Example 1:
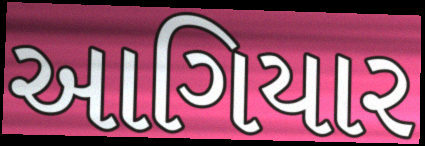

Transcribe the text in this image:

આગિયાર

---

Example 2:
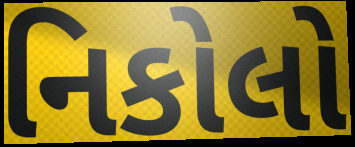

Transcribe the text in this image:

નિકોલો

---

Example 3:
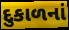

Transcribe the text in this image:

દુકાળનાં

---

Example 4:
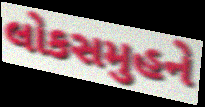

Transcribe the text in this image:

લોકસમુહને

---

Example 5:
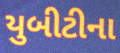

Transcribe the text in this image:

યુબીટીના